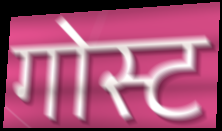
गोस्ट